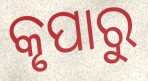
କୃପାରୁ